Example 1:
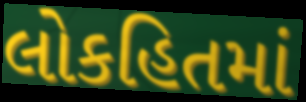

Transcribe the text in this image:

લોકહિતમાં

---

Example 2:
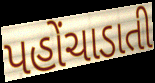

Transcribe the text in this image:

પહોંચાડાતી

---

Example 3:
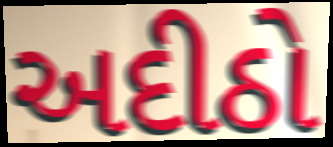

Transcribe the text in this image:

અદીઠો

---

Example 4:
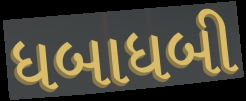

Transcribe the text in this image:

ધબાધબી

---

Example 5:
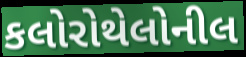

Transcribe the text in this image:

કલોરોથેલોનીલ